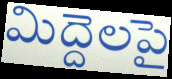
మిద్దెలపై